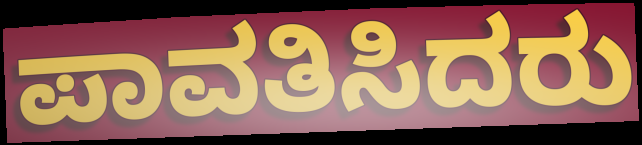
ಪಾವತಿಸಿದರು